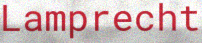
Lamprecht